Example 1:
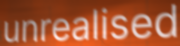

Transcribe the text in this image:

unrealised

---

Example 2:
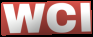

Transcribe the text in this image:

WCI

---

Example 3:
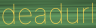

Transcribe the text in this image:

deadurl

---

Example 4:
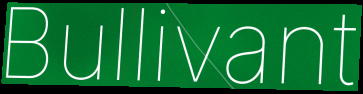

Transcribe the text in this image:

Bullivant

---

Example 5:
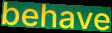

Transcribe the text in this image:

behave